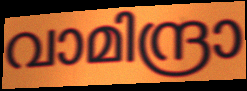
വാമിന്ദ്രാ